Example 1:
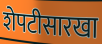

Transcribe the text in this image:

शेपटीसारखा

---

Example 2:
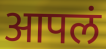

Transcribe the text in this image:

आपलं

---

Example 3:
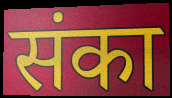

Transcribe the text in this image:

संका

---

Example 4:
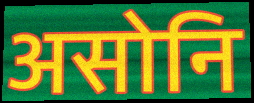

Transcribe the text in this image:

असोनि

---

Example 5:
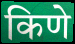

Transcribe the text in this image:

किणे